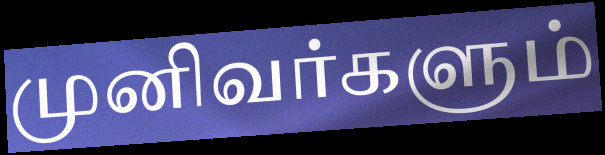
முனிவர்களும்